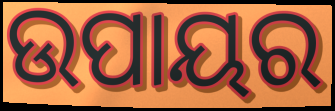
ଉପାୟର